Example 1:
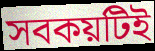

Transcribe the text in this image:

সবকয়টিই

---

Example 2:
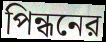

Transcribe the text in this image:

পিন্ধনের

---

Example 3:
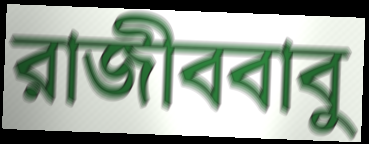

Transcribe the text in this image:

রাজীববাবু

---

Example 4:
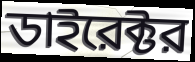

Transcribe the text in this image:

ডাইরেক্টর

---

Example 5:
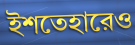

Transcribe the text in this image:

ইশতেহারেও